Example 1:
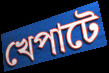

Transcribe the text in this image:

খেপাটে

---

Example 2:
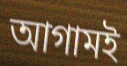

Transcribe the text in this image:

আগামই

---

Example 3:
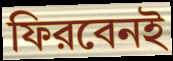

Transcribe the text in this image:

ফিরবেনই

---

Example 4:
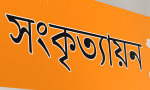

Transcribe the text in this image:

সংকৃত্যায়ন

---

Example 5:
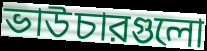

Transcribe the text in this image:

ভাউচারগুলো